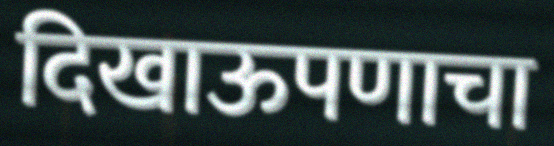
दिखाऊपणाचा